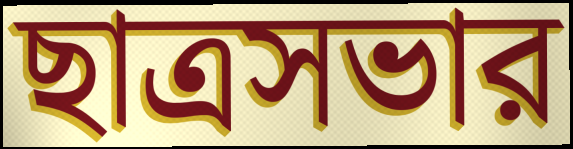
ছাত্রসভার